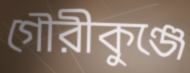
গৌরীকুঞ্জে